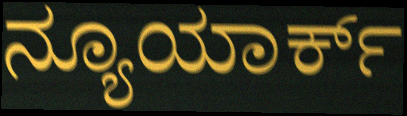
ನ್ಯೂಯಾರ್ಕ್